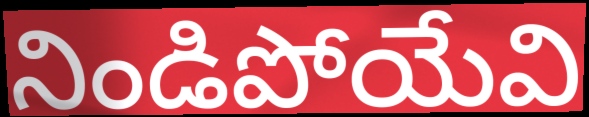
నిండిపోయేవి